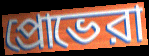
প্রোভেরা